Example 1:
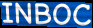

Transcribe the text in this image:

INBOC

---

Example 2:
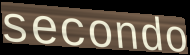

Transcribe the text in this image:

secondo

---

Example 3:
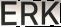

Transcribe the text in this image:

ERK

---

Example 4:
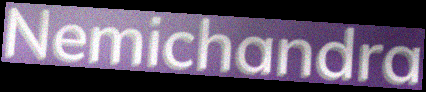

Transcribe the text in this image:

Nemichandra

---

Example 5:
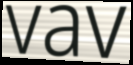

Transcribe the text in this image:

vav